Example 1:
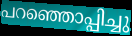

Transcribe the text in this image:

പറഞ്ഞൊപ്പിച്ചു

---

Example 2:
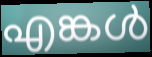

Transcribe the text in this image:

എങ്കൾ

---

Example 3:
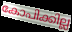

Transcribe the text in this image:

കോപിക്കില്ല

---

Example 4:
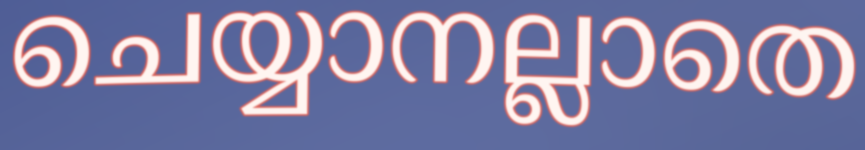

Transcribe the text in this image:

ചെയ്യാനല്ലാതെ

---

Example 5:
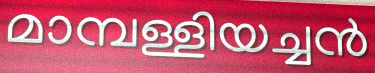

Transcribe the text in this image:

മാമ്പള്ളിയച്ചൻ